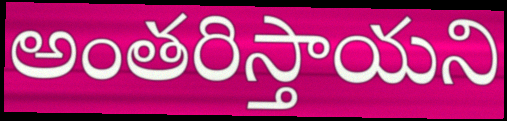
అంతరిస్తాయని